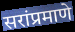
सरांप्रमाणे